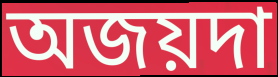
অজয়দা